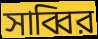
সাব্বির